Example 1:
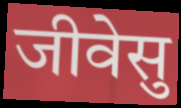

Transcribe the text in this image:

जीवेसु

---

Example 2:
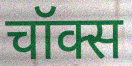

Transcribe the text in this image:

चॉक्स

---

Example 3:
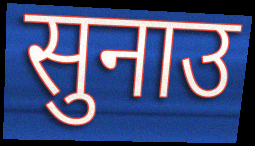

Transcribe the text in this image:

सुनाउ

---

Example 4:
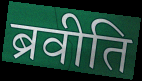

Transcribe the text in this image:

ब्रवीति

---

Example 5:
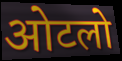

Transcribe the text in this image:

ओटलो